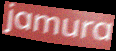
jamura